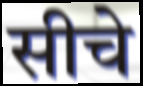
सीचे